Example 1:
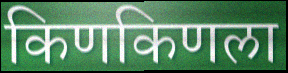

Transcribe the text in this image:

किणकिणला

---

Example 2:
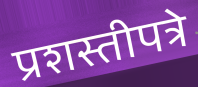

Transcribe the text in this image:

प्रशस्तीपत्रे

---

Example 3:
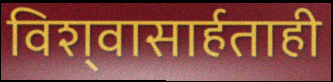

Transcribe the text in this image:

विश्वासार्हताही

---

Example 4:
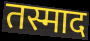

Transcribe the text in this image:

तस्माद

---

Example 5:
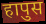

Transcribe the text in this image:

हापुस